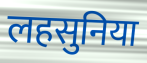
लहसुनिया